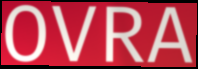
OVRA